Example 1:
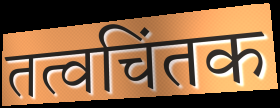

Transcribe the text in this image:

तत्वचिंतक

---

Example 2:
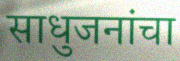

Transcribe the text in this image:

साधुजनांचा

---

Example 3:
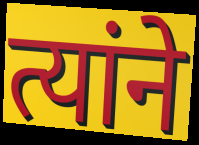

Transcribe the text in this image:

त्यांने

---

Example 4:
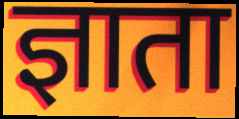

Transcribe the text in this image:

ज्ञाता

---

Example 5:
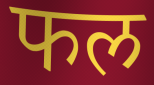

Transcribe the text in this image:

फल